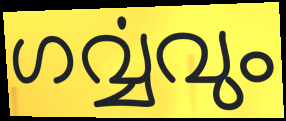
ഗൎവ്വവും